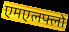
एमएलफ्लो